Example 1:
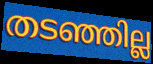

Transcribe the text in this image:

തടഞ്ഞില്ല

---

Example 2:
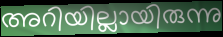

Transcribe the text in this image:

അറിയില്ലായിരുന്നു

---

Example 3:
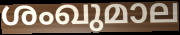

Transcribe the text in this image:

ശംഖുമാല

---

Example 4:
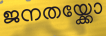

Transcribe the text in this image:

ജനതയ്ക്കോ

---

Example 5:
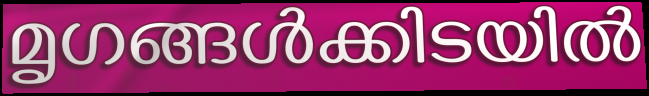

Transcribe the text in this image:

മൃഗങ്ങൾക്കിടയിൽ